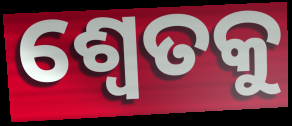
ଶ୍ଵେତକୁ